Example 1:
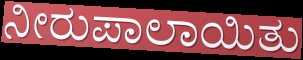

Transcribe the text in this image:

ನೀರುಪಾಲಾಯಿತು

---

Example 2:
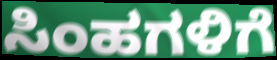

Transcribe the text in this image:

ಸಿಂಹಗಳಿಗೆ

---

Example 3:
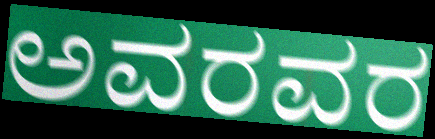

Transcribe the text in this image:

ಅವರವರ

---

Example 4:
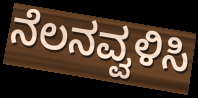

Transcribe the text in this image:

ನೆಲನವ್ವಳಿಸಿ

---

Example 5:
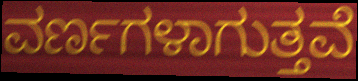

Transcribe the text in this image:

ವರ್ಣಗಳಾಗುತ್ತವೆ